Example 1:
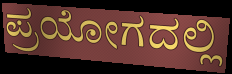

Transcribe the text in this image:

ಪ್ರಯೋಗದಲ್ಲಿ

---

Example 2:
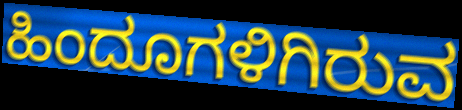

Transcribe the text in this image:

ಹಿಂದೂಗಳಿಗಿರುವ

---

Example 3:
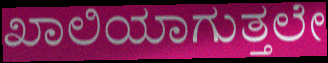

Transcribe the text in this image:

ಖಾಲಿಯಾಗುತ್ತಲೇ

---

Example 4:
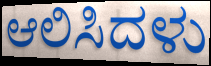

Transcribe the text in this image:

ಆಲಿಸಿದಳು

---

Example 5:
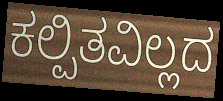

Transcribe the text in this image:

ಕಲ್ಪಿತವಿಲ್ಲದ